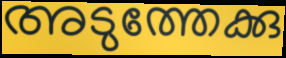
അടുത്തേക്കു